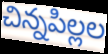
చిన్నపిల్లల